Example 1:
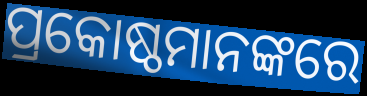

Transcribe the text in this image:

ପ୍ରକୋଷ୍ଠମାନଙ୍କରେ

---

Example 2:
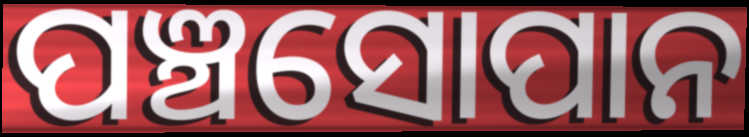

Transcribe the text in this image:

ପଞ୍ଚସୋପାନ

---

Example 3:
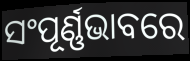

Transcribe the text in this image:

ସଂପୂର୍ଣ୍ଣଭାବରେ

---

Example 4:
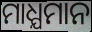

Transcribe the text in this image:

ମାଧ୍ଯମାନ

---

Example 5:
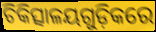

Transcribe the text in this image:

ଚିକିତ୍ସାଳୟଗୁଡ଼ିକରେ